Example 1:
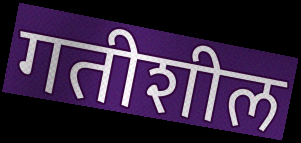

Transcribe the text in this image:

गतीशील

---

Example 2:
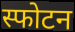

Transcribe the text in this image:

स्फोटन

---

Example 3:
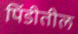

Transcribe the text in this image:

पिंडीतील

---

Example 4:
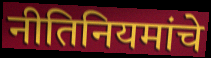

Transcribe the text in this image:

नीतिनियमांचे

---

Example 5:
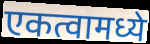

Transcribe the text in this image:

एकत्वामध्ये